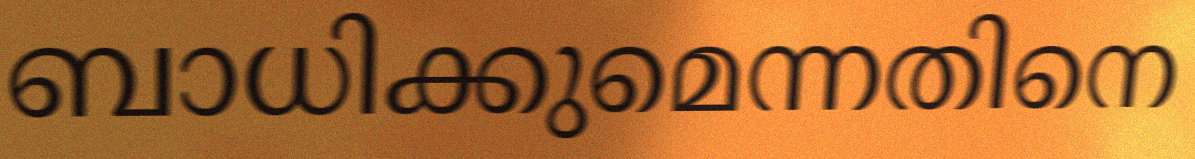
ബാധിക്കുമെന്നതിനെ